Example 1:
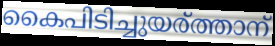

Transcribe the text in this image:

കൈപിടിച്ചുയര്ത്താന്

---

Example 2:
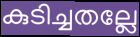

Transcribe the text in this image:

കുടിച്ചതല്ലേ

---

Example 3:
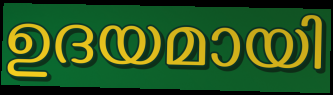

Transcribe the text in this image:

ഉദയമായി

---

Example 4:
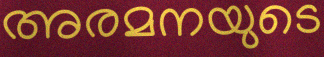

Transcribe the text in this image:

അരമനയുടെ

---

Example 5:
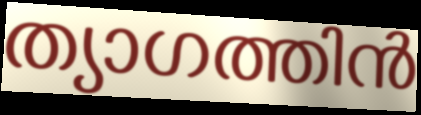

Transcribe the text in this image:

ത്യാഗത്തിൻ